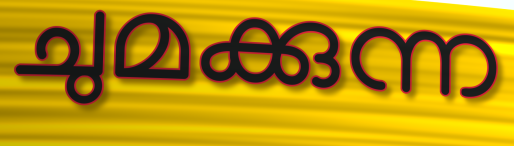
ചുമക്കുന്ന